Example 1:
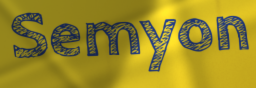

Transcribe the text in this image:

Semyon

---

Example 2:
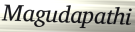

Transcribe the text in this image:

Magudapathi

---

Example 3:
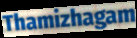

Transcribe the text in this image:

Thamizhagam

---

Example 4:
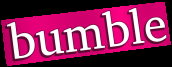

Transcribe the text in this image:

bumble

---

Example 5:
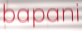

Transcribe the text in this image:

bapani